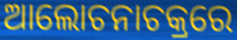
ଆଲୋଚନାଚକ୍ରରେ